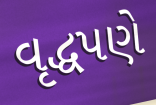
વૃદ્ધપણે